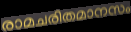
രാമചരിതമാനസം